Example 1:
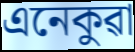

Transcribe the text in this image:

এনেকুৱা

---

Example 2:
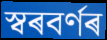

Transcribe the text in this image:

স্বৰবৰ্ণৰ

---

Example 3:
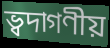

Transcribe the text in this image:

ভ্বদাগণীয়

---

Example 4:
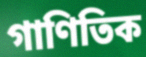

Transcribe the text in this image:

গাণিতিক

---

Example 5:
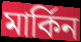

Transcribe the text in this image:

মাৰ্কিন